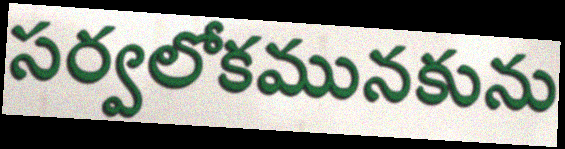
సర్వలోకమునకును